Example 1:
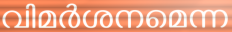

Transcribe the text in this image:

വിമർശനമെന്ന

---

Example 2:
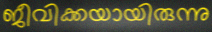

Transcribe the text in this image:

ജീവിക്കയായിരുന്നു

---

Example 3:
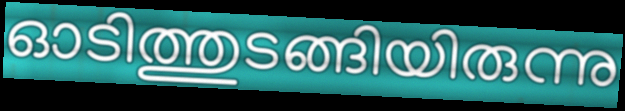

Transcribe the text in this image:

ഓടിത്തുടങ്ങിയിരുന്നു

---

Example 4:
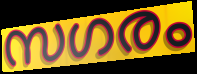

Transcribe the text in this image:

സഗരം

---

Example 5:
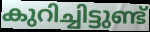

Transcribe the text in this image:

കുറിച്ചിട്ടുണ്ട്